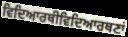
ਵਿਦਿਆਰਥੀਵਿਦਿਆਰਥਣਾਂ